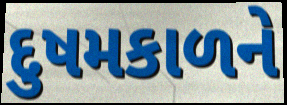
દુષમકાળને